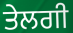
ਤੇਲਗੀ